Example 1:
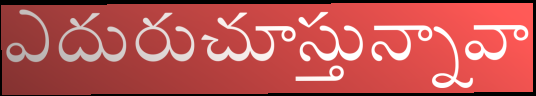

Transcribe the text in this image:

ఎదురుచూస్తున్నావా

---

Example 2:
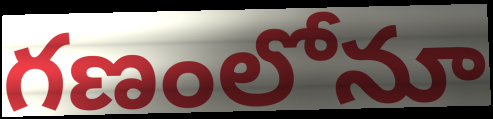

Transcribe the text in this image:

గణంలోనూ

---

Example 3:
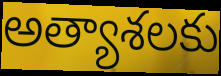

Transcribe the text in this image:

అత్యాశలకు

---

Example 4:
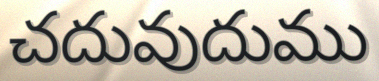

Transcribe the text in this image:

చదువుదుము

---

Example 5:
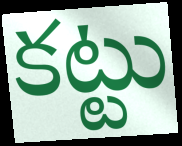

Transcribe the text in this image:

కట్టు